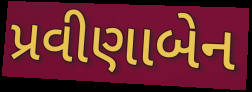
પ્રવીણાબેન